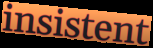
insistent